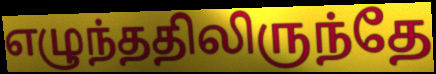
எழுந்ததிலிருந்தே